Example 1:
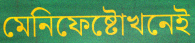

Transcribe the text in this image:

মেনিফেষ্টোখনেই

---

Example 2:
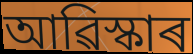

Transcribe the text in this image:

আৱিস্কাৰ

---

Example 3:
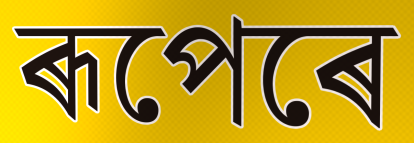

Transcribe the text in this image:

ৰূপেৰে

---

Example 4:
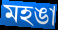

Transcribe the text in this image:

মহঙা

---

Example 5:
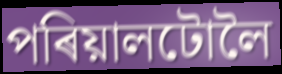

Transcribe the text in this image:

পৰিয়ালটোলৈ